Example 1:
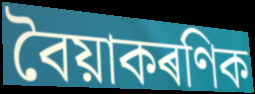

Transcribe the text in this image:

বৈয়াকৰণিক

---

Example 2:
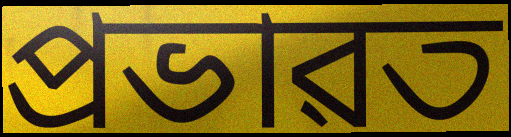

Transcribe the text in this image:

প্ৰভাৱত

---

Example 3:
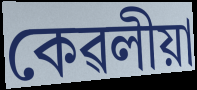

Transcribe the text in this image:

কেৱলীয়া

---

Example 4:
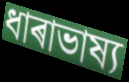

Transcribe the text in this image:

ধাৰাভাষ্য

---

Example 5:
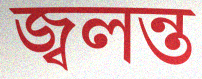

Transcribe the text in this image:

জ্বলন্ত